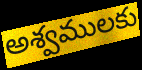
అశ్వములకు